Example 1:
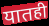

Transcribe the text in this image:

यातही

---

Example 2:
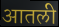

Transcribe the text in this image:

आतली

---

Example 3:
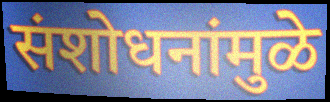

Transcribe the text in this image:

संशोधनांमुळे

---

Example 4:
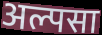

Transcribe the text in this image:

अल्पसा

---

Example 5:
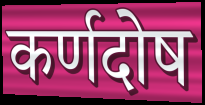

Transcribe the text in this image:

कर्णदोष